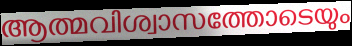
ആത്മവിശ്വാസത്തോടെയും